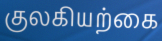
குலகியற்கை